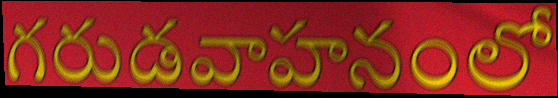
గరుడవాహనంలో